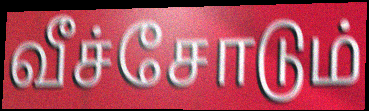
வீச்சோடும்